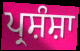
ਪ੍ਰਸ਼ੰਸ਼ਾ